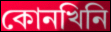
কোনখিনি